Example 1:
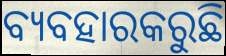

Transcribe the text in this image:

ବ୍ୟବହାରକରୁଛି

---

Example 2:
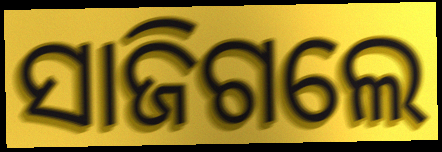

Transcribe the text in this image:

ସାଜିଗଲେ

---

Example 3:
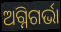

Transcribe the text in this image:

ଅଗ୍ନିଗର୍ଭା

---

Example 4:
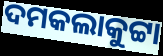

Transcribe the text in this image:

ଦମକଲାକୁଟ୍ଟା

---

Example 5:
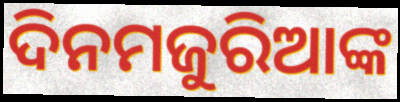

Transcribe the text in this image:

ଦିନମଜୁରିଆଙ୍କ